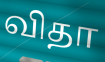
விதா